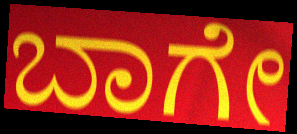
ಬಾಗೇ